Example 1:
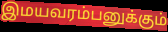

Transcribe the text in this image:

இமயவரம்பனுக்கும்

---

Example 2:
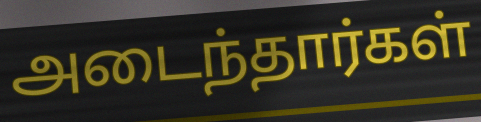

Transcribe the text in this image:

அடைந்தார்கள்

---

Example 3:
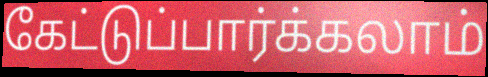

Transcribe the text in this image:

கேட்டுப்பார்க்கலாம்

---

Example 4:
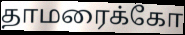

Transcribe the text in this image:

தாமரைக்கோ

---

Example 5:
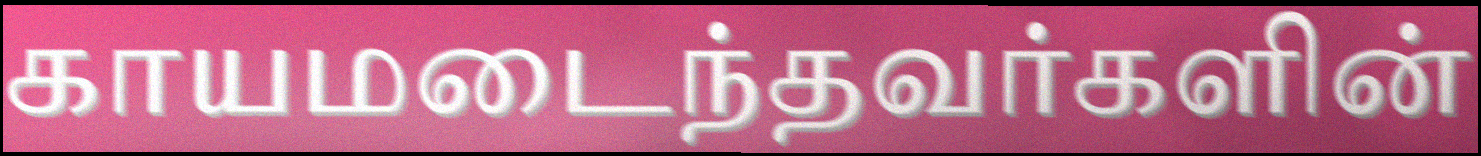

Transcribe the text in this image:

காயமடைந்தவர்களின்